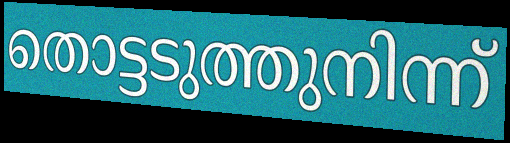
തൊട്ടടുത്തുനിന്ന്